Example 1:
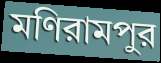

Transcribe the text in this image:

মণিরামপুর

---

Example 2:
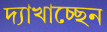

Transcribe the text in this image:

দ্যাখাচ্ছেন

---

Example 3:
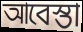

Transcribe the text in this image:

আবেস্তা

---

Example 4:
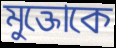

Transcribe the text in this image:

মুক্তোকে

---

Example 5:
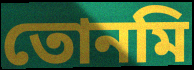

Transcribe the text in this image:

তোনমি